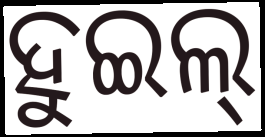
ହୁଇଲ୍